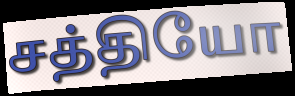
சத்தியோ